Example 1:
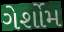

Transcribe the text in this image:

ગેર્શોમ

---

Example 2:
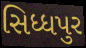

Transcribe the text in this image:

સિધ્ધપુર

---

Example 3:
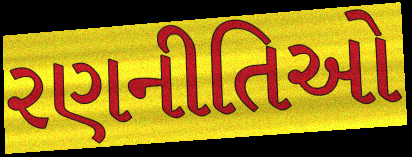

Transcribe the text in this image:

રણનીતિઓ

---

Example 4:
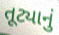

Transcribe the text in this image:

તૂટ્યાનું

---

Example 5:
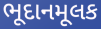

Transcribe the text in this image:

ભૂદાનમૂલક